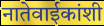
नातेवाईकांशी